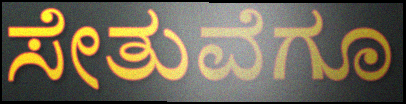
ಸೇತುವೆಗೂ